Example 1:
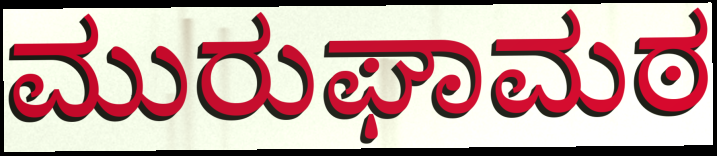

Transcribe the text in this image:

ಮುರುಘಾಮಠ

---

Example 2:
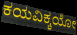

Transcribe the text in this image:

ಕಯವಿಕ್ಕಯೋ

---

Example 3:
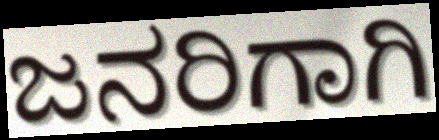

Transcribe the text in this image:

ಜನರಿಗಾಗಿ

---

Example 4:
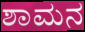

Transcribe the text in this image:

ಶಾಮನ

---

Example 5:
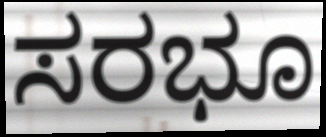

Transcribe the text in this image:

ಸರಭೂ